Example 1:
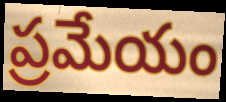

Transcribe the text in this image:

ప్రమేయం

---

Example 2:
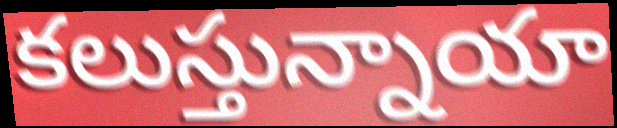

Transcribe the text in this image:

కలుస్తున్నాయా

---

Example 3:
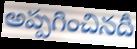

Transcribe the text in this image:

అప్పగించినదీ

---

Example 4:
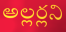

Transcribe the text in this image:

అల్లర్లని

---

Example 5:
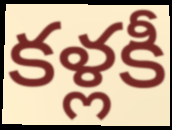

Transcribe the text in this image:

కళ్లకీ